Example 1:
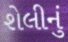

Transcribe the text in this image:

શેલીનું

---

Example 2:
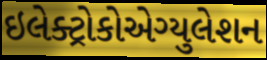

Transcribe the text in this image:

ઇલેક્ટ્રોકોએગ્યુલેશન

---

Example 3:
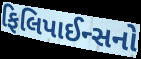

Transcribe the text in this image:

ફિલિપાઈન્સનો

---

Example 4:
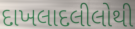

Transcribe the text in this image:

દાખલાદલીલોથી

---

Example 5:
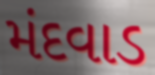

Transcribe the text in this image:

મંદવાડ